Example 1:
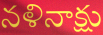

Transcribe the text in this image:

నళినాక్షు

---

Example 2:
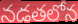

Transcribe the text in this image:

నడతలోన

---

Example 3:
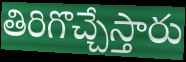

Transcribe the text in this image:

తిరిగొచ్చేస్తారు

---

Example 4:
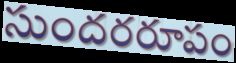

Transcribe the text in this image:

సుందరరూపం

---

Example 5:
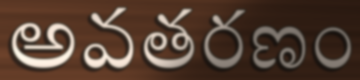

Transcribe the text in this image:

అవతరణం